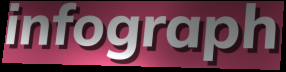
infograph